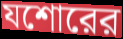
যশোরের